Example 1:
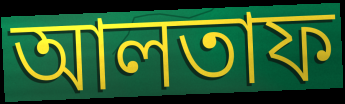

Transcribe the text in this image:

আলতাফ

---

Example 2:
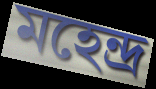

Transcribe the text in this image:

মহেন্দ্ৰ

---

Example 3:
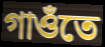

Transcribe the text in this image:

গাওঁতে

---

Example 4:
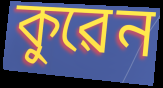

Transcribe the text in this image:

কুৱেন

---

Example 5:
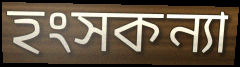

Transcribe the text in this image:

হংসকন্যা